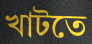
খাটতে